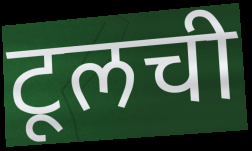
टूलची